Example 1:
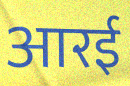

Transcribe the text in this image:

आरई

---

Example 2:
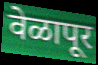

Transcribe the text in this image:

वेळापूर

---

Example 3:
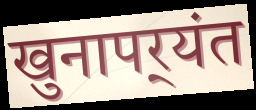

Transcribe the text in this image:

खुनापर्यंत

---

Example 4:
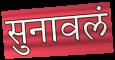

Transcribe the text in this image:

सुनावलं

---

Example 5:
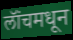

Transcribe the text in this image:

लॉंचमधून